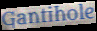
Gantihole